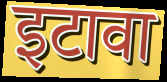
इटावा